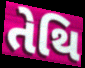
તેથિ